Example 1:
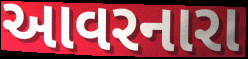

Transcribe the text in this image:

આવરનારા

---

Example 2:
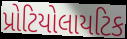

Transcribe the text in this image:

પ્રોટિયોલાયટિક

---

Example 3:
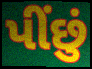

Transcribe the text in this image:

પીંછું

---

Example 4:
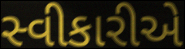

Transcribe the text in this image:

સ્વીકારીએ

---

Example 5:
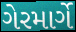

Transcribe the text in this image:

ગેરમાર્ગે